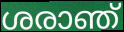
ശരാഞ്